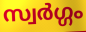
സ്വർഗ്ഗം